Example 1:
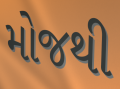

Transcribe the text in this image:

મોજથી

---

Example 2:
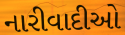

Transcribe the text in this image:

નારીવાદીઓ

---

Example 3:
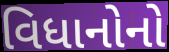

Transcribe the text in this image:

વિધાનોનો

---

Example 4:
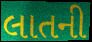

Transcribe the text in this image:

લાતની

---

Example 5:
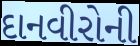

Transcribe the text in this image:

દાનવીરોની